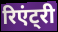
रिएंट्री